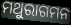
ମଥୁରାଗମନ